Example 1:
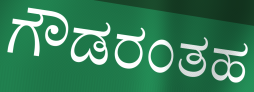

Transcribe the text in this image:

ಗೌಡರಂತಹ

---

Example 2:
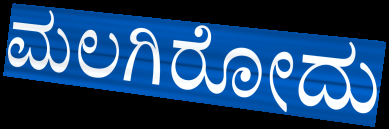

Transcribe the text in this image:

ಮಲಗಿರೋದು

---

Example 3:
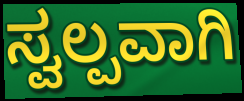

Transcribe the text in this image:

ಸ್ವಲ್ಪವಾಗಿ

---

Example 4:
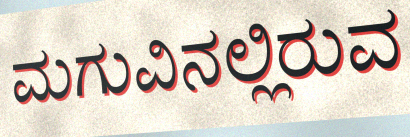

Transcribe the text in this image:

ಮಗುವಿನಲ್ಲಿರುವ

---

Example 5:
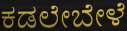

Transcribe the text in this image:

ಕಡಲೇಬೇಳೆ